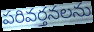
పరివర్తనలను